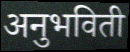
अनुभविती